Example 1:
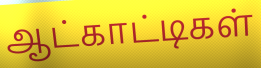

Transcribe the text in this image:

ஆட்காட்டிகள்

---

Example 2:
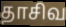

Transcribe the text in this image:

தாசிவ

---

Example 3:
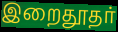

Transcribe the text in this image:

இறைதூதர்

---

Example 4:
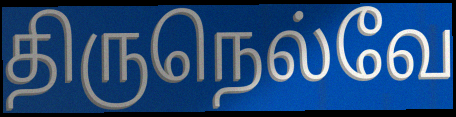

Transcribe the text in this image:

திருநெல்வே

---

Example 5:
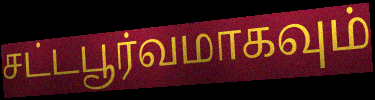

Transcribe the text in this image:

சட்டபூர்வமாகவும்